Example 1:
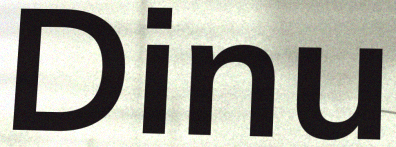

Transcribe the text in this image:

Dinu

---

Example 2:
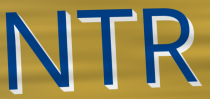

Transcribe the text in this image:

NTR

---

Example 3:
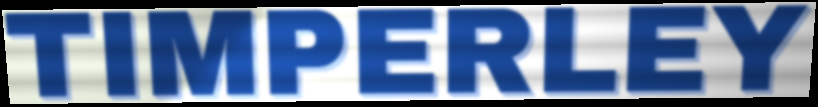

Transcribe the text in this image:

TIMPERLEY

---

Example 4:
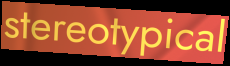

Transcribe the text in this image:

stereotypical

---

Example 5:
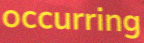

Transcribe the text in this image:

occurring